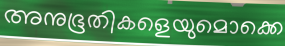
അനുഭൂതികളെയുമൊക്കെ